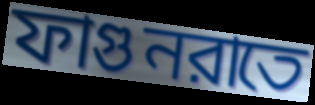
ফাগুনরাতে